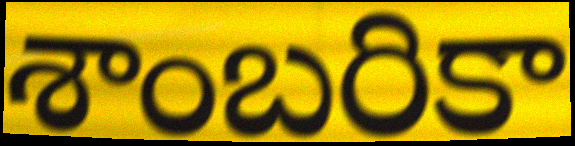
శాంబరికా